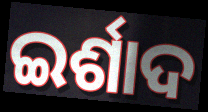
ଇର୍ଶାଦ